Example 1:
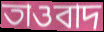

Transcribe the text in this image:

তাওবাদ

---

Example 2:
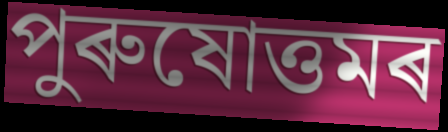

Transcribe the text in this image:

পুৰুষোত্তমৰ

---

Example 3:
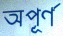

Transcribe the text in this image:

অপূৰ্ণ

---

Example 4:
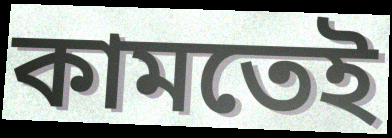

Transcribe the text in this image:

কামতেই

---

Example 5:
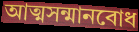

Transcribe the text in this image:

আত্মসন্মানবোধ